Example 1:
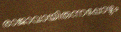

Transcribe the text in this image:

രാജാവായിരുന്നപ്പോഴും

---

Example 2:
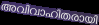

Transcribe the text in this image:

അവിവാഹിതരായി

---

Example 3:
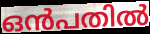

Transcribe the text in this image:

ഒൻപതിൽ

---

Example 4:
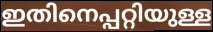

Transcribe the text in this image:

ഇതിനെപ്പറ്റിയുള്ള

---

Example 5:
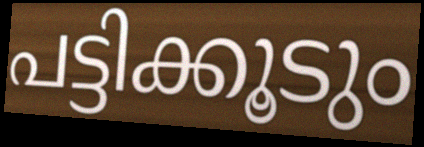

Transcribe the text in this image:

പട്ടിക്കൂടും